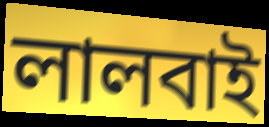
লালবাই